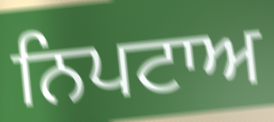
ਨਿਪਟਾਅ